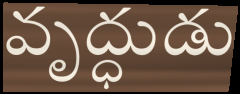
వృద్ధుడు